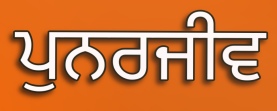
ਪੁਨਰਜੀਵ